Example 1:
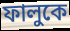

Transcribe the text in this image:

ফালুকে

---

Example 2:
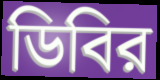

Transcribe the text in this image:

ডিবির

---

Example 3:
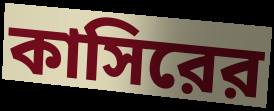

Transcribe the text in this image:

কাসিরের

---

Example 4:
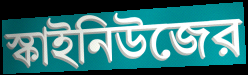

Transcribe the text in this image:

স্কাইনিউজের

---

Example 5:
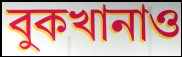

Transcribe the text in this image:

বুকখানাও